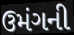
ઉમંગની